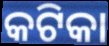
କଟିକା